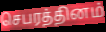
செபரத்தினம்